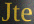
Jte